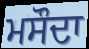
ਮਸੌਦਾ